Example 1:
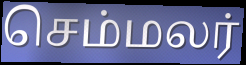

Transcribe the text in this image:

செம்மலர்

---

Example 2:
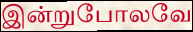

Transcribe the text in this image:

இன்றுபோலவே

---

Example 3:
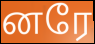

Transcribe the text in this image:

னரே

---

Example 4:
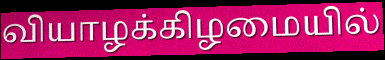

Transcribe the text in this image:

வியாழக்கிழமையில்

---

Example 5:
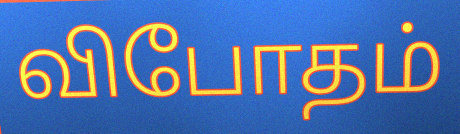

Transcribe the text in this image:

விபோதம்